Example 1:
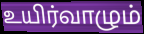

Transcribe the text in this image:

உயிர்வாழும்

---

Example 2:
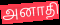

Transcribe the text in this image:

அனாதி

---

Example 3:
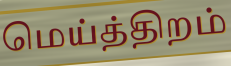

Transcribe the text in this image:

மெய்த்திறம்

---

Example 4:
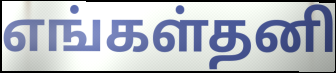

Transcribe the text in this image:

எங்கள்தனி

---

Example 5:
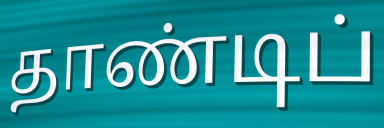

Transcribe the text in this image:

தாண்டிப்